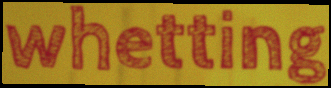
whetting